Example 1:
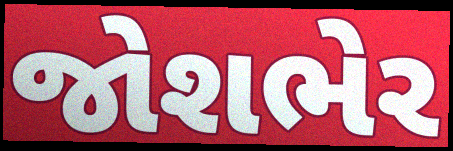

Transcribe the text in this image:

જોશભેર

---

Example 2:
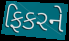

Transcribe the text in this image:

ફિકરને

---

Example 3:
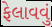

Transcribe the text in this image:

ફેલાવવું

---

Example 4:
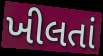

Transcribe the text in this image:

ખીલતાં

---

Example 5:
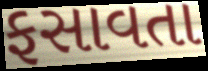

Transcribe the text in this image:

ફસાવતા